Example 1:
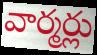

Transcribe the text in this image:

వార్మర్లు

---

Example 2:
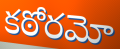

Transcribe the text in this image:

కఠోరమో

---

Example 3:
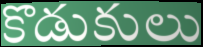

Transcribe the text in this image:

కొడుకులు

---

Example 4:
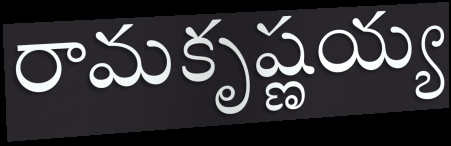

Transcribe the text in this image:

రామకృష్ణయ్య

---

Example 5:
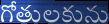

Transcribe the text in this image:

గోతులకును